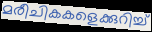
മരീചികകളെക്കുറിച്ച്